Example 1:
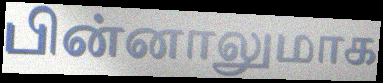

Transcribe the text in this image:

பின்னாலுமாக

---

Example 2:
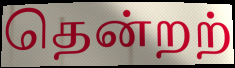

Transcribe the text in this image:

தென்றற்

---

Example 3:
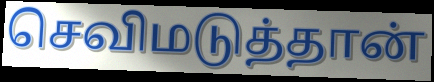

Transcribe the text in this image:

செவிமடுத்தான்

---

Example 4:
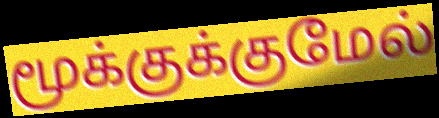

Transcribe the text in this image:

மூக்குக்குமேல்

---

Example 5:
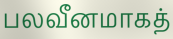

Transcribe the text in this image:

பலவீனமாகத்